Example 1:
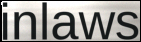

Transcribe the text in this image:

inlaws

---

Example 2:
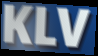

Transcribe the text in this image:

KLV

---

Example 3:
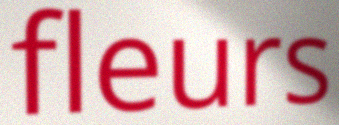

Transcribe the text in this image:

fleurs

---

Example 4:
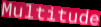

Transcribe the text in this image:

Multitude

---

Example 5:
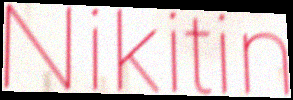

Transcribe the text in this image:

Nikitin